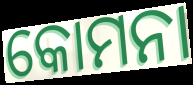
କୋମନା